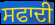
ਸਫਾਦੀ